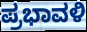
ಪ್ರಭಾವಳಿ